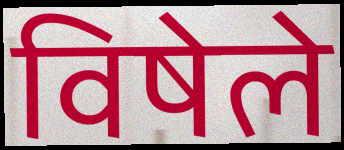
विषेले